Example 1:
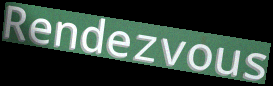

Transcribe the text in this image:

Rendezvous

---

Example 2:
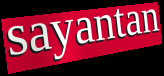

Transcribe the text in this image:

sayantan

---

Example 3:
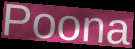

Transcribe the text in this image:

Poona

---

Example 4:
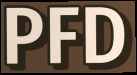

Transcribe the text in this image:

PFD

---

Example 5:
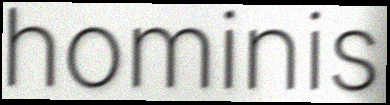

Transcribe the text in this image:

hominis